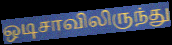
ஒடிசாவிலிருந்து